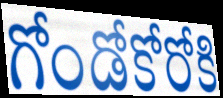
గోండోకోరోకి